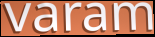
varam